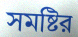
সমষ্টির